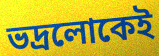
ভদ্রলোকেই